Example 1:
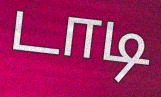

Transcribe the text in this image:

டாடி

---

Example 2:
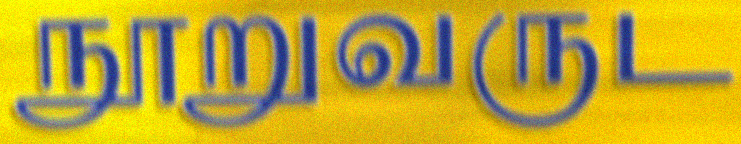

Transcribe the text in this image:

நூறுவருட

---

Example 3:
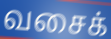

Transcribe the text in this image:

வசைக்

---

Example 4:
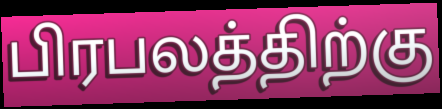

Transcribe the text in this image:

பிரபலத்திற்கு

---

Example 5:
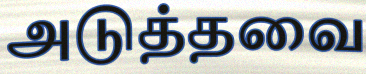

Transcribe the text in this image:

அடுத்தவை